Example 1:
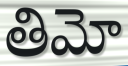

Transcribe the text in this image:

తిమో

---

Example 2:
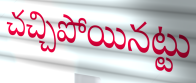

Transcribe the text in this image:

చచ్చిపోయినట్టు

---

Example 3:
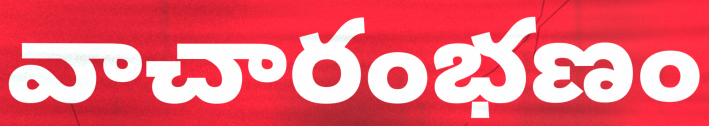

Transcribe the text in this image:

వాచారంభణం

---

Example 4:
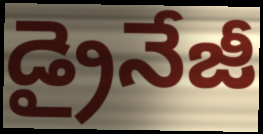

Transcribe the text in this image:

డ్రైనేజీ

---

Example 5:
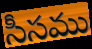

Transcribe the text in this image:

సీసము